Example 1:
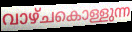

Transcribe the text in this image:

വാഴ്ചകൊള്ളുന്ന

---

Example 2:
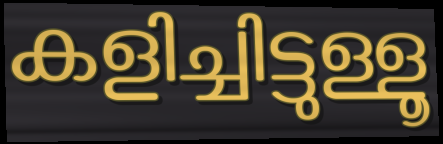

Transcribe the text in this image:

കളിച്ചിട്ടുള്ളൂ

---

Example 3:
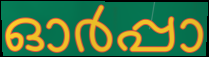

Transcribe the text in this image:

ഓർപ്പാ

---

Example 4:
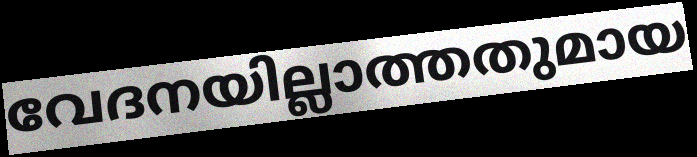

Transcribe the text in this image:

വേദനയില്ലാത്തതുമായ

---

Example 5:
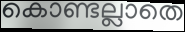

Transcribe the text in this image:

കൊണ്ടല്ലാതെ